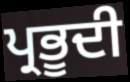
ਪ੍ਰਭੂਦੀ